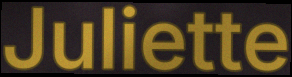
Juliette